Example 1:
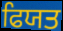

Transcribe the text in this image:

ਫਿਯਤ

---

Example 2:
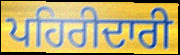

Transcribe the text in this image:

ਪਹਿਰੀਦਾਰੀ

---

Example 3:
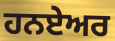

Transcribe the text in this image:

ਹਨਏਅਰ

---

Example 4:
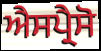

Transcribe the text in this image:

ਐਸਪ੍ਰੈਸੋ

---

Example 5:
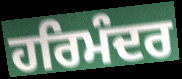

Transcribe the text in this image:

ਹਰਿਮੰਦਰ